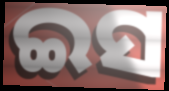
ଇସ